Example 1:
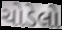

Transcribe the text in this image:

ચોડેલો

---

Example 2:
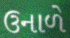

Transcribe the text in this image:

ઉનાળે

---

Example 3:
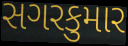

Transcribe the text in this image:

સગરકુમાર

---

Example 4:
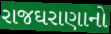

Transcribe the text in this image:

રાજઘરાણાનો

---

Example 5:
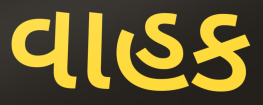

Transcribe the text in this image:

વાહક